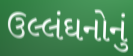
ઉલ્લંઘનોનું